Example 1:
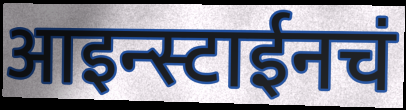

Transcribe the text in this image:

आइन्स्टाईनचं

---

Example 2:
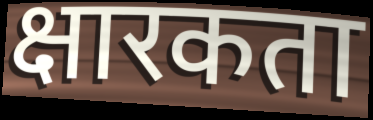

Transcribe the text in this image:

क्षारकता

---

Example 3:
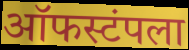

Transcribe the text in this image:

ऑफस्टंपला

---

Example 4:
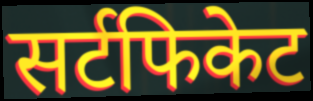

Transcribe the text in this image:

सर्टफिकेट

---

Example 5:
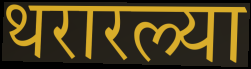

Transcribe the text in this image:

थरारल्या